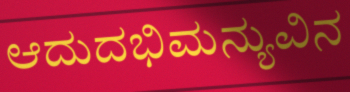
ಆದುದಭಿಮನ್ಯುವಿನ